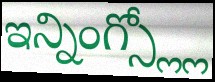
ఇన్నింగ్స్ల్లో